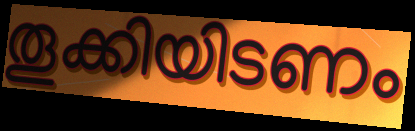
തൂക്കിയിടണം